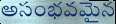
అసంభవమైన